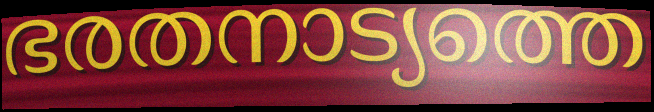
ഭരതനാട്യത്തെ